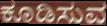
ಕೂಡಿಸುವ